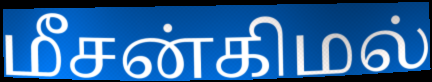
மீசன்கிமல்